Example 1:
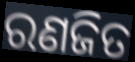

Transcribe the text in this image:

ରଣଜିତ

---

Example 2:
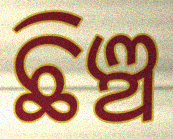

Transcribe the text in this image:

ଛିଞ୍ଚ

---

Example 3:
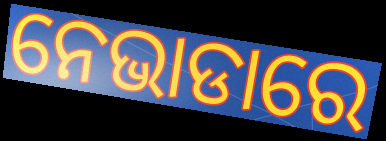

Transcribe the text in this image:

ନେଭାଡାରେ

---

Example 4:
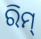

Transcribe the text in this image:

ରିମ୍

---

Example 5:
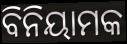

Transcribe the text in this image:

ବିନିୟାମକ